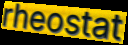
rheostat